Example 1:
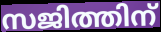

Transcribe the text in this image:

സജിത്തിന്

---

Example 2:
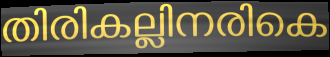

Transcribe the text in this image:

തിരികല്ലിനരികെ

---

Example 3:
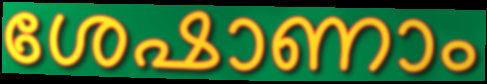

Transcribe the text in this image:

ശേഷാണാം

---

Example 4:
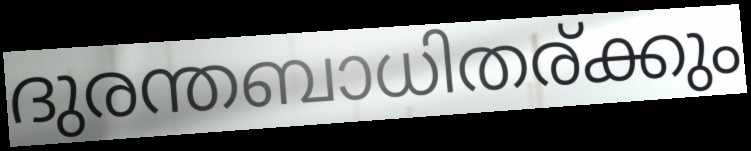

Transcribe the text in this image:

ദുരന്തബാധിതര്ക്കും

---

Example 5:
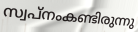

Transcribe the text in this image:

സ്വപ്നംകണ്ടിരുന്നു